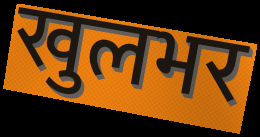
खुलभर